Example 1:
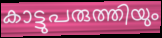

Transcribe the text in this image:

കാട്ടുപരുത്തിയും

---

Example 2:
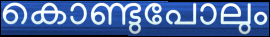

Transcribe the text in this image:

കൊണ്ടുപോലും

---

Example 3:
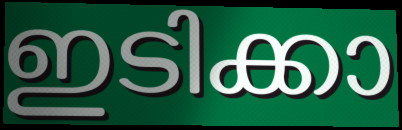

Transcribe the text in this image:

ഇടിക്കാ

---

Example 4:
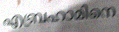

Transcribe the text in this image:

എബ്രഹാമിനെ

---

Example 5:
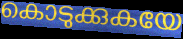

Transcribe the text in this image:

കൊടുക്കുകയേ